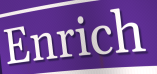
Enrich